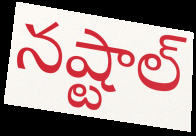
నష్టాల్